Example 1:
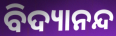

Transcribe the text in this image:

ବିଦ୍ୟାନନ୍ଦ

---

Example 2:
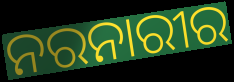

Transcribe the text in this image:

ନରନାରୀର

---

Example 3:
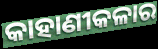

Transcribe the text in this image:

କାହାଣୀକଳାର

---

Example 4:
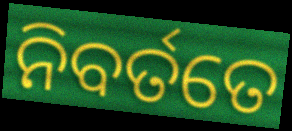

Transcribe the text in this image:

ନିବର୍ତତେ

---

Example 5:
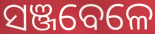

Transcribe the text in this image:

ସଞ୍ଜବେଳେ